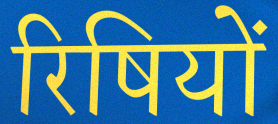
रिषियों